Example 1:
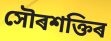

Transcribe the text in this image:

সৌৰশক্তিৰ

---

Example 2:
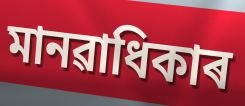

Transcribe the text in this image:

মানৱাধিকাৰ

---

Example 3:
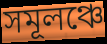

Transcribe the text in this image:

সমূলঞ্চে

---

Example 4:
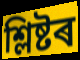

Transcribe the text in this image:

শ্লিষ্টৰ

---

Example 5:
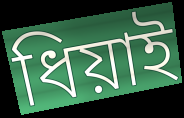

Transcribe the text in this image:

ধিয়াই